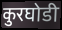
कुरघोडी